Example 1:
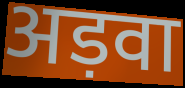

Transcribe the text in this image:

अड़वा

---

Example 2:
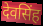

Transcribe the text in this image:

देवसिंह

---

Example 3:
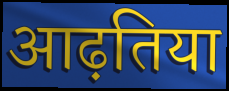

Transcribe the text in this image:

आढ़तिया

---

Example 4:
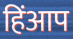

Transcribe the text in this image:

हिंआप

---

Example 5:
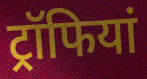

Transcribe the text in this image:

ट्रॉफियां